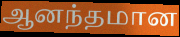
ஆனந்தமான